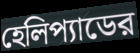
হেলিপ্যাডের